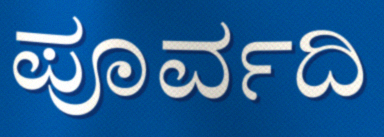
ಪೂರ್ವದಿ